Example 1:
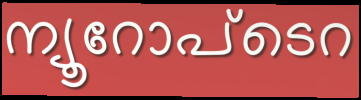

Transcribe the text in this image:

ന്യൂറോപ്ടെറ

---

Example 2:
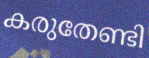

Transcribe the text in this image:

കരുതേണ്ടി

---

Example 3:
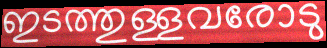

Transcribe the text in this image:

ഇടത്തുള്ളവരോടു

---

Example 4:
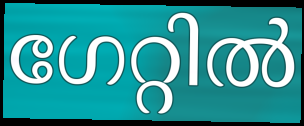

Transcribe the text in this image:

ഗേറ്റിൽ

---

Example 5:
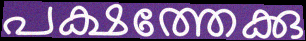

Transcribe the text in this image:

പക്ഷത്തേക്കു